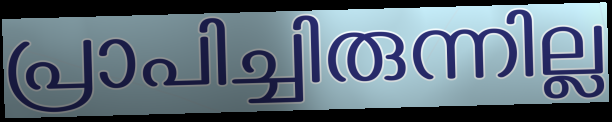
പ്രാപിച്ചിരുന്നില്ല